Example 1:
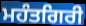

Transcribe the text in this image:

ਮਹੰਤਗਿਰੀ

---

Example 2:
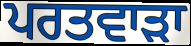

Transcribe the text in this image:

ਪਰਤਵਾੜਾ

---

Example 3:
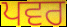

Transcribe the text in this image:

ਪਵਰ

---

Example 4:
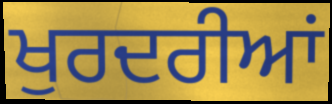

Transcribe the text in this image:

ਖੁਰਦਰੀਆਂ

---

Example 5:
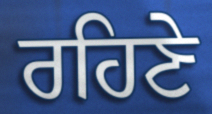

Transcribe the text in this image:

ਰਹਿਣੇ